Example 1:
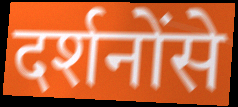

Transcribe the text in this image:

दर्शनोंसे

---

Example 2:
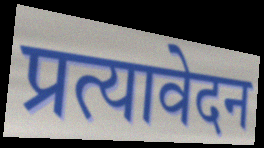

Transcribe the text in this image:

प्रत्यावेदन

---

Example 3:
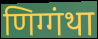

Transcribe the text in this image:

णिग्गंथा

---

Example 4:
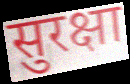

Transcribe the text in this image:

सुरक्षा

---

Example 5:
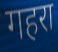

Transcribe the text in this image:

गहरा